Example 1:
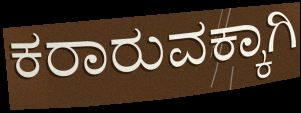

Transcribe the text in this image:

ಕರಾರುವಕ್ಕಾಗಿ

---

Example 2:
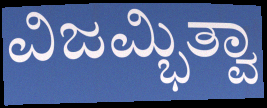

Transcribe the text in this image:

ವಿಜಮ್ಭಿತ್ವಾ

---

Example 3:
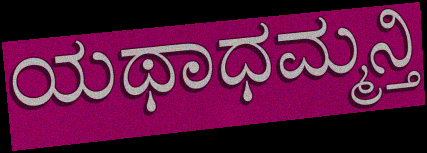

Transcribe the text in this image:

ಯಥಾಧಮ್ಮನ್ತಿ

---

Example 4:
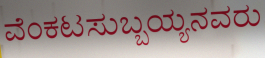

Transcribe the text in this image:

ವೆಂಕಟಸುಬ್ಬಯ್ಯನವರು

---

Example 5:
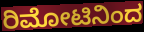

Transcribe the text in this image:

ರಿಮೋಟಿನಿಂದ